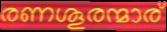
രണശൂരന്മാര്